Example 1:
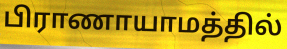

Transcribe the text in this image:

பிராணாயாமத்தில்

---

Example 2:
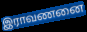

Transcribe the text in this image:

இராவணனை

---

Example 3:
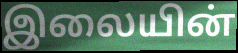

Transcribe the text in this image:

இலையின்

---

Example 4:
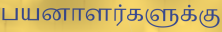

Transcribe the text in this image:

பயனாளர்களுக்கு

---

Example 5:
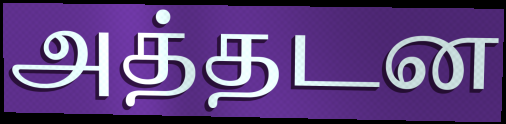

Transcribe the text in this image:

அத்தடன